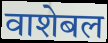
वाशेबल